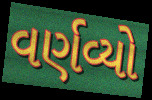
વર્ણવ્યો